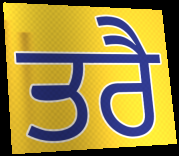
ਤਰੈ